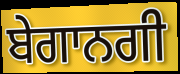
ਬੇਗਾਨਗੀ